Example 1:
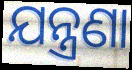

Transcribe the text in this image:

ଯନ୍ତ୍ରଣା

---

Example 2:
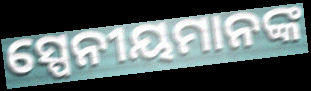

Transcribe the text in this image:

ସ୍ପେନୀୟମାନଙ୍କ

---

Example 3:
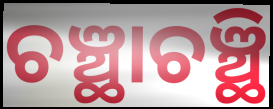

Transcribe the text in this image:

ଚଞ୍ଛାଚଞ୍ଛି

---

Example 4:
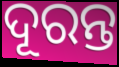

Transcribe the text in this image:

ଦୂରନ୍ତ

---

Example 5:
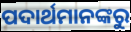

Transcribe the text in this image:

ପଦାର୍ଥମାନଙ୍କରୁ